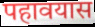
पहावयास